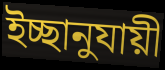
ইচ্ছানুযায়ী